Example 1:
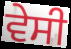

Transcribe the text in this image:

ਵੇਸੀ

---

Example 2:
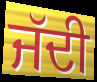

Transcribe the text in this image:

ਜੱਦੀ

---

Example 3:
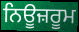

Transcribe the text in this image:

ਨਿਊਜ਼ਰੂਮ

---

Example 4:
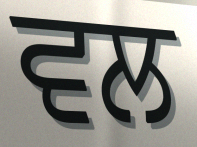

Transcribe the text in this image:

ਵਲ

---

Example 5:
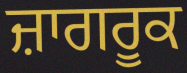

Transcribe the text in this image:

ਜ਼ਾਗਰੂਕ